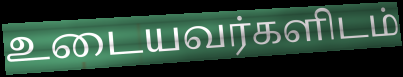
உடையவர்களிடம்